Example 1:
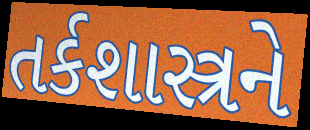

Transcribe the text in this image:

તર્કશાસ્ત્રને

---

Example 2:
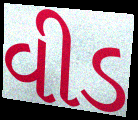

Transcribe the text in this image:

વીડ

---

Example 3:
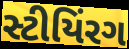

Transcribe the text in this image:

સ્ટીયિંરગ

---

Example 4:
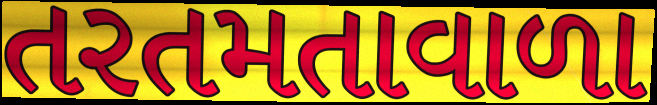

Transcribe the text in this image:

તરતમતાવાળા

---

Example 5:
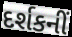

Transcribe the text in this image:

દર્શકનીં